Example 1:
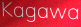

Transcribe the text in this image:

Kagawa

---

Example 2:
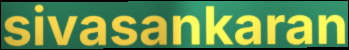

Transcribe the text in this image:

sivasankaran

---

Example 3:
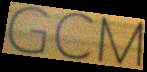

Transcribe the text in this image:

GCM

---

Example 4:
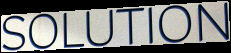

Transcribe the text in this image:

SOLUTION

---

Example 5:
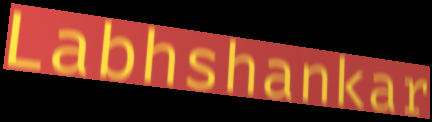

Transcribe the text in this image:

Labhshankar